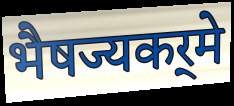
भैषज्यकर्मे